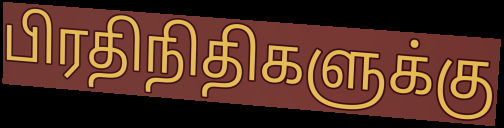
பிரதிநிதிகளுக்கு